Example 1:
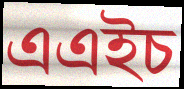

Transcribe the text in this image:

এএইচ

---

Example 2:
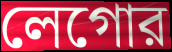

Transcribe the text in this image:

লেগোর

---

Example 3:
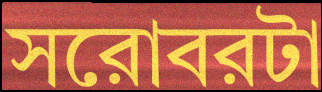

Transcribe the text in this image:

সরোবরটা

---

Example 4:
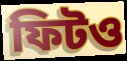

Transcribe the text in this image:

ফিটও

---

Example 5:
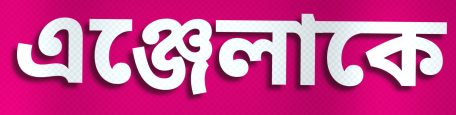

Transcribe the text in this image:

এঞ্জেলাকে